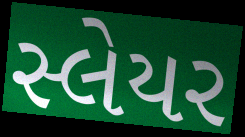
સ્લેયર